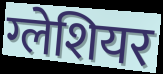
ग्‍लेशियर